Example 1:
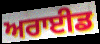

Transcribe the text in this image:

ਅਰਾਈਡ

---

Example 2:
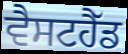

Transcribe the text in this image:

ਵੈਸਟਹੈੱਡ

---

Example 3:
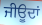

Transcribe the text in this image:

ਜੀਊਦਾਂ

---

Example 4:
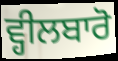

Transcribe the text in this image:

ਵ੍ਹੀਲਬਾਰੋ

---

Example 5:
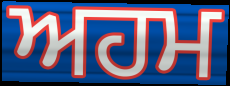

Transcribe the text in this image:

ਅਹਮ